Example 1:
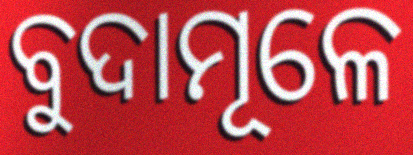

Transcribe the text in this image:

ବୁଦାମୂଳେ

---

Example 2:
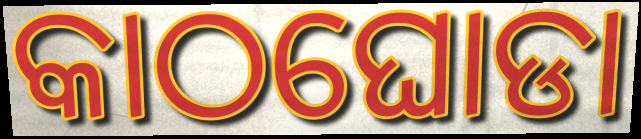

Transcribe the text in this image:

କାଠଘୋଡା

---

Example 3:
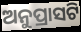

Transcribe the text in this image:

ଅନୁପ୍ରାସଟି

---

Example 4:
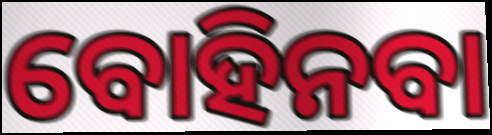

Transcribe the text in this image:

ବୋହିନବା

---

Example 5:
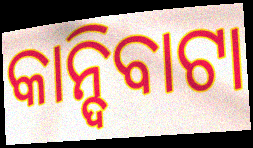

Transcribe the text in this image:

କାନ୍ଦିବାଟା